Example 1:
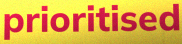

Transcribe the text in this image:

prioritised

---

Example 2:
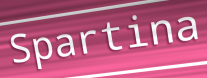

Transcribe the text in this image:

Spartina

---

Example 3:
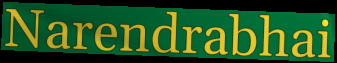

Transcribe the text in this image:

Narendrabhai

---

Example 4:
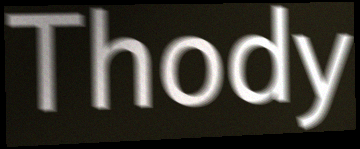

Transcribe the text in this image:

Thody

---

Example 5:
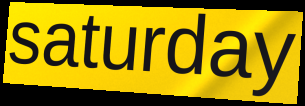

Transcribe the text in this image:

saturday